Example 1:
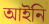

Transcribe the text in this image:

আইনি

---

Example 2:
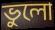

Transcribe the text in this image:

ভুলো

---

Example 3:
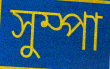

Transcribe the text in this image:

সুম্পা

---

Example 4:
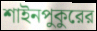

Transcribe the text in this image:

শাইনপুকুরের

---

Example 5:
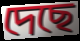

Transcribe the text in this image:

দেছে